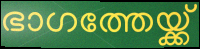
ഭാഗത്തേയ്ക്ക്